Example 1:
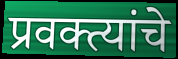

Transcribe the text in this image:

प्रवक्त्यांचे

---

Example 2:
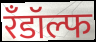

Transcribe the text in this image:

रँडॉल्फ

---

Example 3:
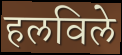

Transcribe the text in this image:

हलविले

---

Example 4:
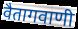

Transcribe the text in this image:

वैतागवाणी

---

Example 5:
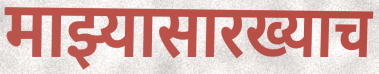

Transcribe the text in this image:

माझ्यासारख्याच